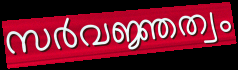
സർവജ്ഞത്വം